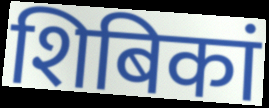
शिबिकां